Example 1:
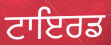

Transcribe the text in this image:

ਟਾਇਰਡ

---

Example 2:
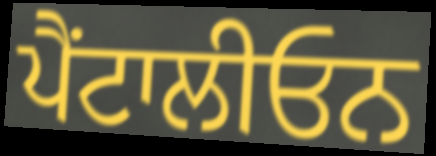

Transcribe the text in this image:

ਪੈਂਟਾਲੀਓਨ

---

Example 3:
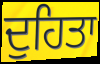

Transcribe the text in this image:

ਦੁਹਿਤਾ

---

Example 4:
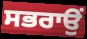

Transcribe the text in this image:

ਸਭਰਾਉਂ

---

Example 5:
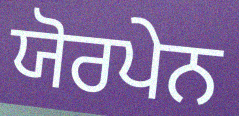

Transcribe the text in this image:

ਯੋਰਪੇਨ